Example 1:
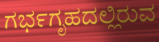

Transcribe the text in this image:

ಗರ್ಭಗೃಹದಲ್ಲಿರುವ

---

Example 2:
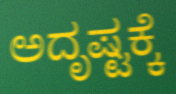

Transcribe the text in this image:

ಅದೃಷ್ಟಕ್ಕೆ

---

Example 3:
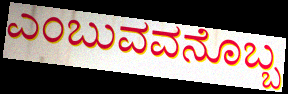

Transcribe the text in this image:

ಎಂಬುವವನೊಬ್ಬ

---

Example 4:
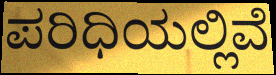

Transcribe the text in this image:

ಪರಿಧಿಯಲ್ಲಿವೆ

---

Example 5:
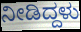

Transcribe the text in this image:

ನೀಡಿದ್ದಳು